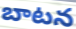
బాటన